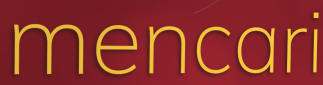
mencari